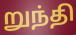
றுந்தி